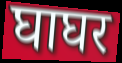
घाघर